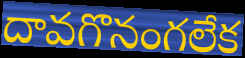
దావగొనంగలేక